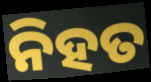
ନିହତ